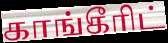
காங்கீரிட்